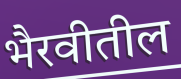
भैरवीतील